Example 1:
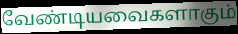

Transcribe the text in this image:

வேண்டியவைகளாகும்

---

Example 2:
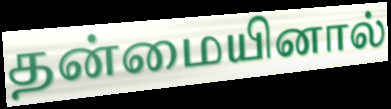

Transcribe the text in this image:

தன்மையினால்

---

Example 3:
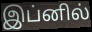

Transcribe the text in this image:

இப்னில்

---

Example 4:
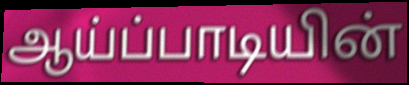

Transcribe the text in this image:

ஆய்ப்பாடியின்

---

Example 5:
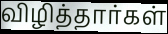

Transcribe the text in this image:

விழித்தார்கள்